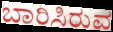
ಬಾರಿಸಿರುವ